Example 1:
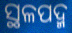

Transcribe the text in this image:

ସ୍ଥଳପଦ୍ମ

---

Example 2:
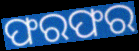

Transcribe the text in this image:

ଫରଫର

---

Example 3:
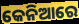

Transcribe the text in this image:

କେନିଆରେ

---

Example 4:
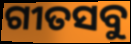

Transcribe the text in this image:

ଗୀତସବୁ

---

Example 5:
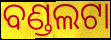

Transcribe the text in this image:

ବଣ୍ଡଲଟା